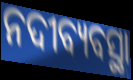
ନଦୀବ୍ୟବସ୍ଥା